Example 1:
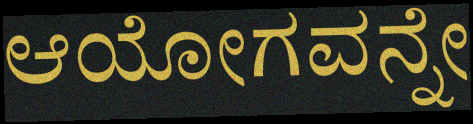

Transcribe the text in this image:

ಆಯೋಗವನ್ನೇ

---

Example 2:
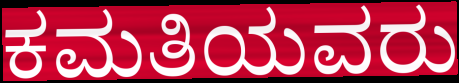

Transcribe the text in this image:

ಕಮತಿಯವರು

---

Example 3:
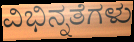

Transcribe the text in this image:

ವಿಭಿನ್ನತೆಗಳು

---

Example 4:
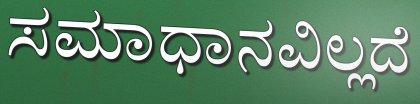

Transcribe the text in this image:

ಸಮಾಧಾನವಿಲ್ಲದೆ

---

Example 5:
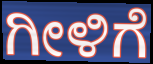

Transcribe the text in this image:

ಗೀಳಿಗೆ